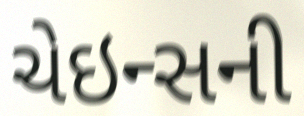
ચેઇન્સની